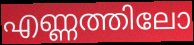
എണ്ണത്തിലോ